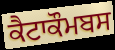
ਕੈਟਾਕੌਮਬਸ